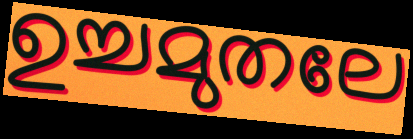
ഉച്ചമുതലേ